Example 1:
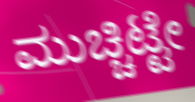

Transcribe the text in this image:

ಮುಚ್ಚಿಟ್ಟೇ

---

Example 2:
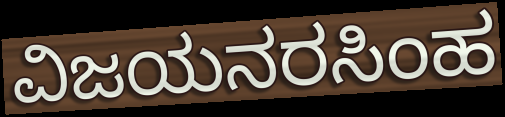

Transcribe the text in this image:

ವಿಜಯನರಸಿಂಹ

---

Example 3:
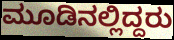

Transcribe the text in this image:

ಮೂಡಿನಲ್ಲಿದ್ದರು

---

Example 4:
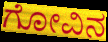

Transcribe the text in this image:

ಗೋವಿನ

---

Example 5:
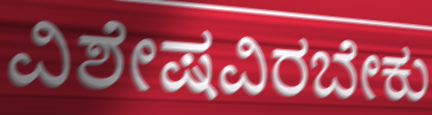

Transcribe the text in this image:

ವಿಶೇಷವಿರಬೇಕು